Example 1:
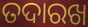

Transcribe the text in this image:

ତଦାରଖ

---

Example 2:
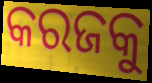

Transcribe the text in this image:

କରଜକୁ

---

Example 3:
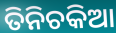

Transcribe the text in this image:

ତିନିଚକିଆ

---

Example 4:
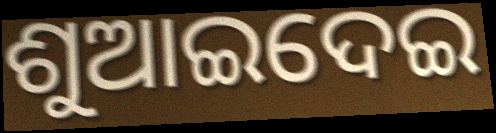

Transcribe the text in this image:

ଶୁଆଇଦେଇ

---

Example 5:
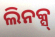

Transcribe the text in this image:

ଲିନକ୍ସ୍